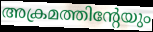
അക്രമത്തിന്റേയും